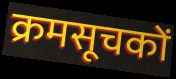
क्रमसूचकों